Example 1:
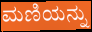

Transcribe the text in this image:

ಮಣಿಯನ್ನು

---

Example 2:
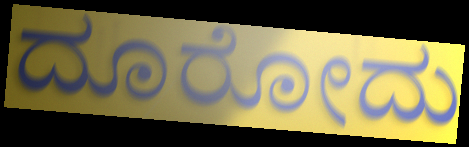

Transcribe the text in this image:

ದೂರೋದು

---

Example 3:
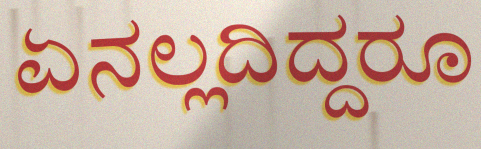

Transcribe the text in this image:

ಏನಲ್ಲದಿದ್ದರೂ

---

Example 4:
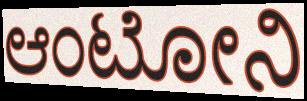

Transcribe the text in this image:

ಆಂಟೋನಿ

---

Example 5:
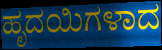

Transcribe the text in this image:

ಹೃದಯಿಗಳಾದ